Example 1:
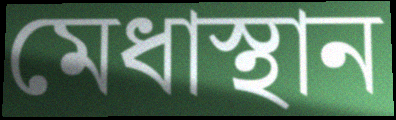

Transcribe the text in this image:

মেধাস্থান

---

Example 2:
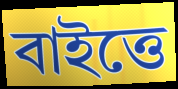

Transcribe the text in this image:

বাইত্তে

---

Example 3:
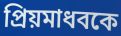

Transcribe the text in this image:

প্রিয়মাধবকে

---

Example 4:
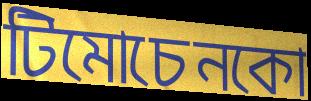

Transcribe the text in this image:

টিমোচেনকো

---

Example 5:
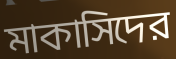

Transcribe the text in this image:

মাকাসিদের